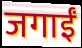
जगाईं